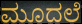
ಮೂದಲೆ